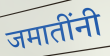
जमातींनी